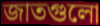
জাতগুলো